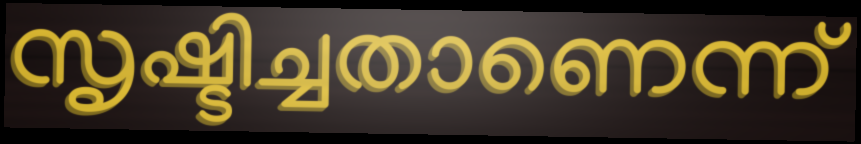
സൃഷ്ടിച്ചതാണെന്ന്